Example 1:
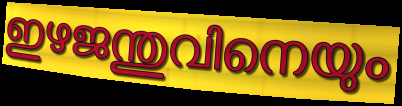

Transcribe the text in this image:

ഇഴജന്തുവിനെയും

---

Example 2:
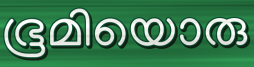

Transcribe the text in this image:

ഭൂമിയൊരു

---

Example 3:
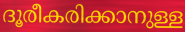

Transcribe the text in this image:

ദൂരീകരിക്കാനുള്ള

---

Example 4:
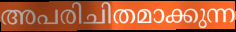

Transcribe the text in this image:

അപരിചിതമാക്കുന്ന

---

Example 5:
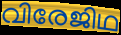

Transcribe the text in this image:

വിരേജിഥ